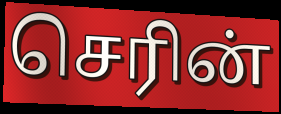
செரின்